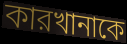
কারখানাকে